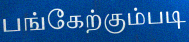
பங்கேற்கும்படி